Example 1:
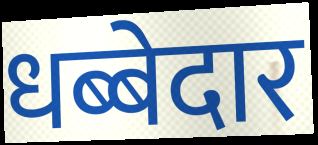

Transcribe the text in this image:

धब्बेदार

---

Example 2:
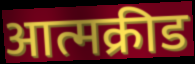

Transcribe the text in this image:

आत्मक्रीड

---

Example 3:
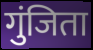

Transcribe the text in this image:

गुंजिता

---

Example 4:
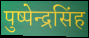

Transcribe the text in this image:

पुष्पेन्द्रसिंह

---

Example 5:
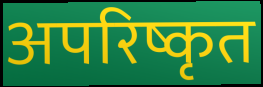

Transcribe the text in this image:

अपरिष्कृत